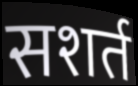
सशर्त